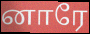
னாரே